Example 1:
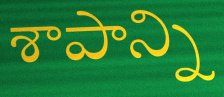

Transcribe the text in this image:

శాపాన్ని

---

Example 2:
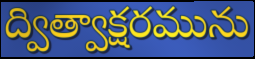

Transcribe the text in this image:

ద్విత్వాక్షరమును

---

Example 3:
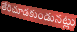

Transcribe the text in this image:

తేరిచూడకుండునట్లు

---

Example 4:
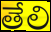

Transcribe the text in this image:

తేలి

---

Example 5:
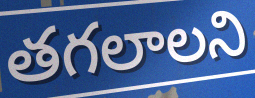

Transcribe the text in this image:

తగలాలని